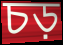
চড়